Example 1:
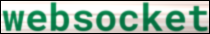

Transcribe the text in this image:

websocket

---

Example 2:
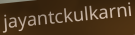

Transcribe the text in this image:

jayantckulkarni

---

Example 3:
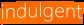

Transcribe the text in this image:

indulgent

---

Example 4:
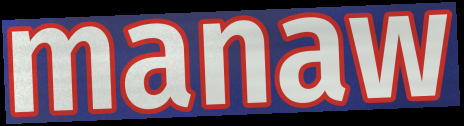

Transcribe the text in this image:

manaw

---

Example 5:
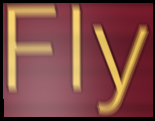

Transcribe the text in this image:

Fly